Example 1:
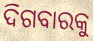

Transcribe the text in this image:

ଦିଗବାରକୁ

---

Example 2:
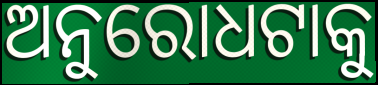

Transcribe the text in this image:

ଅନୁରୋଧଟାକୁ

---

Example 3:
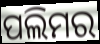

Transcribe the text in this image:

ପଲିମର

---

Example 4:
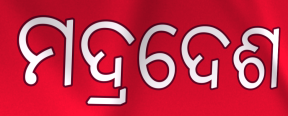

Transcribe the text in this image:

ମଦ୍ରଦେଶ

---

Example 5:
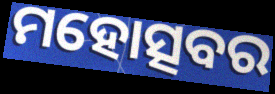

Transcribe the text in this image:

ମହୋତ୍ସବର